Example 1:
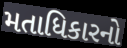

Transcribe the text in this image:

મતાધિકારનો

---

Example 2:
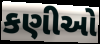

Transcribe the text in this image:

કણીઓ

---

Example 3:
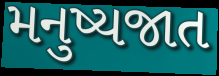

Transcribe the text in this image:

મનુષ્યજાત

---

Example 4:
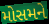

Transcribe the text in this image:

મોસમને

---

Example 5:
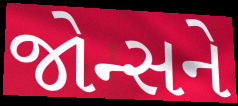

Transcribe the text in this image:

જોન્સને